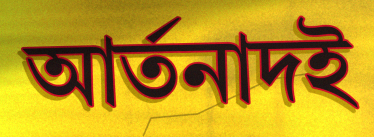
আর্তনাদই